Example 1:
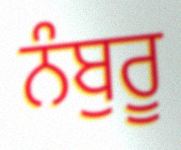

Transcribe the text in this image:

ਨੰਬੁਰੂ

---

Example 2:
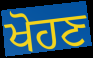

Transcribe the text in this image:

ਖੋਹਣ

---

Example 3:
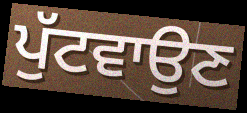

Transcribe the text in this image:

ਪੁੱਟਵਾਉਣ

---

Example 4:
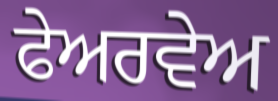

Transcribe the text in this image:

ਫੇਅਰਵੇਅ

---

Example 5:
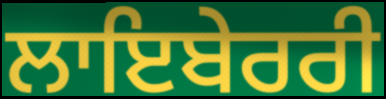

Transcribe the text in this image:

ਲਾਇਬੇਰਰੀ